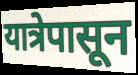
यात्रेपासून